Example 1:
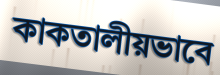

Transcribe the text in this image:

কাকতালীয়ভাবে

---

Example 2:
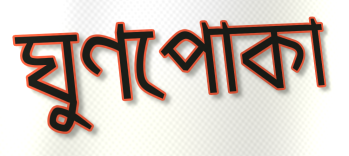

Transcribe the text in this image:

ঘুণপোকা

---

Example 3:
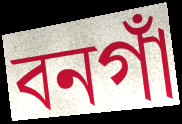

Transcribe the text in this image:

বনগাঁ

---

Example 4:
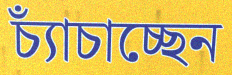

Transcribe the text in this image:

চ্যাঁচাচ্ছেন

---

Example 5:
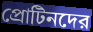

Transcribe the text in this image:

প্রোটিনদের